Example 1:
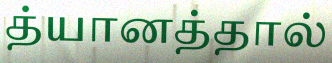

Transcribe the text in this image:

த்யானத்தால்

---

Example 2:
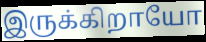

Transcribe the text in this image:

இருக்கிறாயோ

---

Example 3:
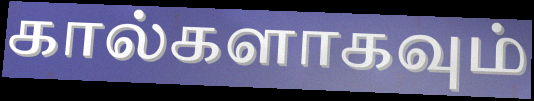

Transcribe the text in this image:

கால்களாகவும்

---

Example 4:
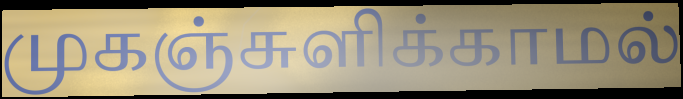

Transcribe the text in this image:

முகஞ்சுளிக்காமல்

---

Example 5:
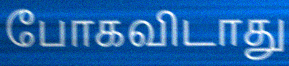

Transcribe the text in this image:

போகவிடாது